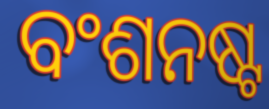
ବଂଶନଷ୍ଟ